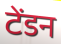
टेंडन